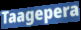
Taagepera